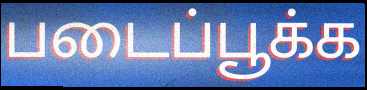
படைப்பூக்க